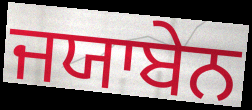
ਜਯਾਬੇਨ